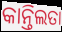
କାନ୍ତିଲତା